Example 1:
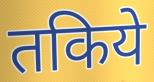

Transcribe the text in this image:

तकिये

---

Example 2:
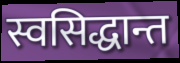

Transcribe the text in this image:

स्वसिद्धान्त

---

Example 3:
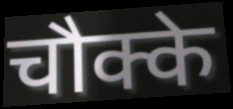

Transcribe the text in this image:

चौक्के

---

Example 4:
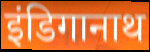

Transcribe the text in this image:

इंडिगानाथ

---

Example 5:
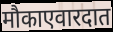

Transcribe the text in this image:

मौकाएवारदात